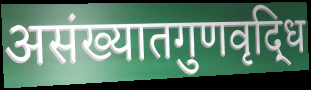
असंख्यातगुणवृद्धि